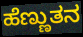
ಹೆಣ್ಣುತನ